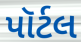
પૉર્ટલ